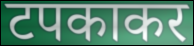
टपकाकर